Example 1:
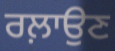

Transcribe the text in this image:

ਰਲ਼ਾਉਣ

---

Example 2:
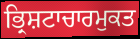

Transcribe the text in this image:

ਭ੍ਰਿਸ਼ਟਾਚਾਰਮੁਕਤ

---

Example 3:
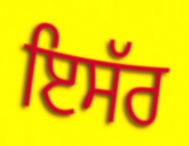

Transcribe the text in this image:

ਇਸੱਰ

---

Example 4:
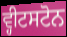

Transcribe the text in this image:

ਵ੍ਹੀਟਸਟੋਨ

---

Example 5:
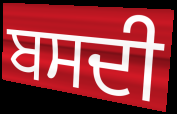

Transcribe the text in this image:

ਬਸਦੀ